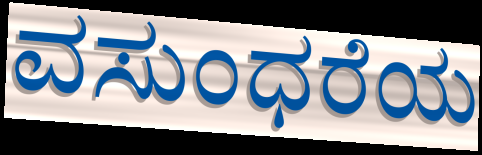
ವಸುಂಧರೆಯ